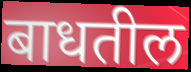
बाधतील